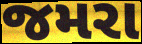
જમરા